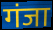
गंजा